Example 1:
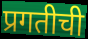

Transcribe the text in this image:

प्रगतीची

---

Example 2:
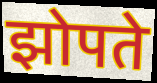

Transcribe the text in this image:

झोपते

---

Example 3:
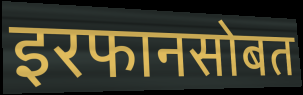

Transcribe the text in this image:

इरफानसोबत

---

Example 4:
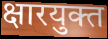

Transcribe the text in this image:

क्षारयुक्त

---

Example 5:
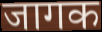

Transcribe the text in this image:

जागक